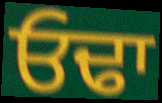
ਓਢਾ